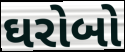
ઘરોબો